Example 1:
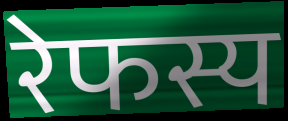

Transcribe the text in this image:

रेफस्य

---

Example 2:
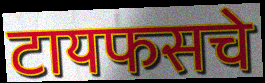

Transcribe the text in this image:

टायफसचे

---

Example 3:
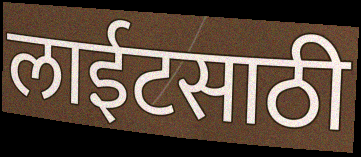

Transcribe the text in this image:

लाईटसाठी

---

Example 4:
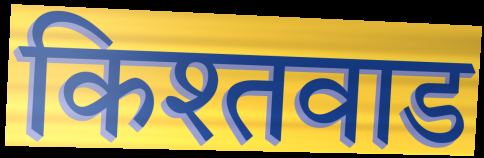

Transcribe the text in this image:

किश्तवाड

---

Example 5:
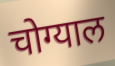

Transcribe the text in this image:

चोग्याल